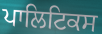
ਪਾਲਿਟਿਕਸ